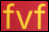
fvf